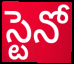
స్టెనో